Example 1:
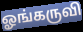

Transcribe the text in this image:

ஓங்கருவி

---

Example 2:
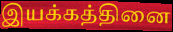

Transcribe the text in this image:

இயக்கத்தினை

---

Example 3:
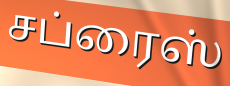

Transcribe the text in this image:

சப்ரைஸ்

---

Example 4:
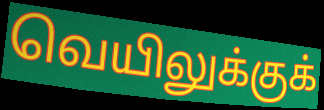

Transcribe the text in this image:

வெயிலுக்குக்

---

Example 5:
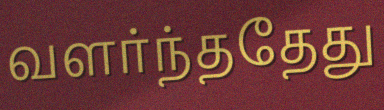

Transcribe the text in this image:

வளர்ந்ததேது